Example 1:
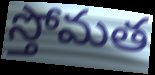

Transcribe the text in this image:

స్తోమత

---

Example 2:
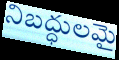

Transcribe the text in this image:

నిబద్ధులమై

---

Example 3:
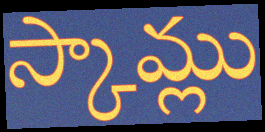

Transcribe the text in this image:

స్కామ్లు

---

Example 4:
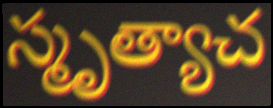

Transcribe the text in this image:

స్మృత్యాచ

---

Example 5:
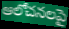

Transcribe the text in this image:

ఆలోచనలపై